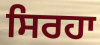
ਸਿਰਹਾ